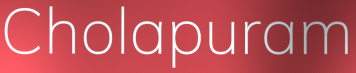
Cholapuram